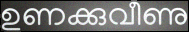
ഉണക്കുവീണു